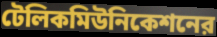
টেলিকমিউনিকেশনের